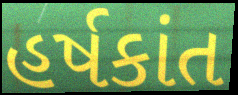
હર્ષકાંત